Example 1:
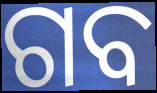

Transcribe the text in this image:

ଗବ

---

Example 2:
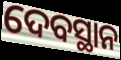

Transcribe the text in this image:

ଦେବସ୍ଥାନ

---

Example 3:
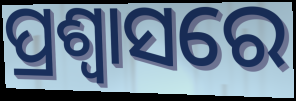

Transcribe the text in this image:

ପ୍ରଶ୍ବାସରେ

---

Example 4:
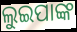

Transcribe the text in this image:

ଲୁଇପାଙ୍କ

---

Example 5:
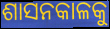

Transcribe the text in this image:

ଶାସନକାଳକୁ